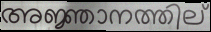
അജ്ഞാനത്തില്